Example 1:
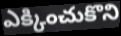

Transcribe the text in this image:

ఎక్కించుకొని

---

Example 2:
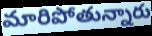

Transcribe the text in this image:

మారిపోతున్నారు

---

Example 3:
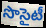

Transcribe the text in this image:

సొసైటీ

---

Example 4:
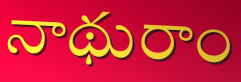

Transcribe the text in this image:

నాథురాం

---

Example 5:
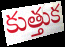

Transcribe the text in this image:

కుత్తుక